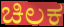
ಚಿಲಕ